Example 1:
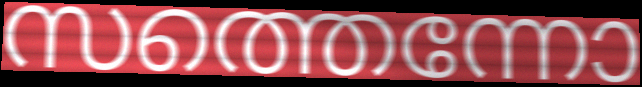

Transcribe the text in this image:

സത്തെന്നോ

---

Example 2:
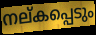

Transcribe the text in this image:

നല്കപ്പെടും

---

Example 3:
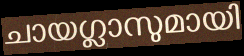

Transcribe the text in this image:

ചായഗ്ലാസുമായി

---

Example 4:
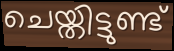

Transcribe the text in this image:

ചെയ്തിട്ടുണ്ട്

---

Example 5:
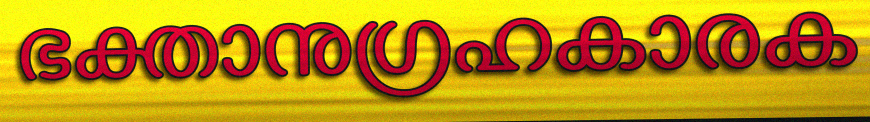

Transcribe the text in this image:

ഭക്താനുഗ്രഹകാരക